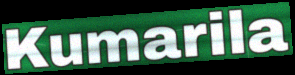
Kumarila